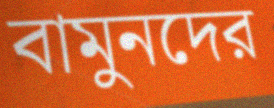
বামুনদের